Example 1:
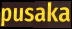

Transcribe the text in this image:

pusaka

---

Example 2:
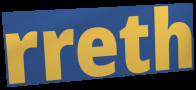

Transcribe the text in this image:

rreth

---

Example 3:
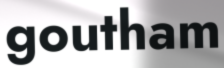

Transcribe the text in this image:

goutham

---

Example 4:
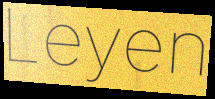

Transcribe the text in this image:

Leyen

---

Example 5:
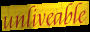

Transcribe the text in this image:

unliveable